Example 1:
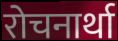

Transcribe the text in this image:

रोचनार्था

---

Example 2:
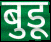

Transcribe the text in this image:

बुडू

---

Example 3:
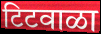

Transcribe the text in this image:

टिटवाळा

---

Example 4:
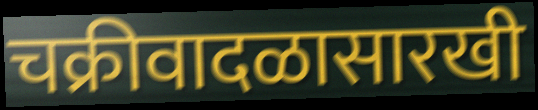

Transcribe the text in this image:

चक्रीवादळासारखी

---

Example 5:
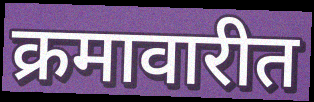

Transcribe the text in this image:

क्रमावारीत